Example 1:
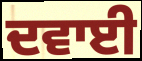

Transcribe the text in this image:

ਦਵਾਈ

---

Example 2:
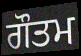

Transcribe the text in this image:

ਗੌਤਮ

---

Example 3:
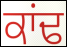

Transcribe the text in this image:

ਕਾਂਢ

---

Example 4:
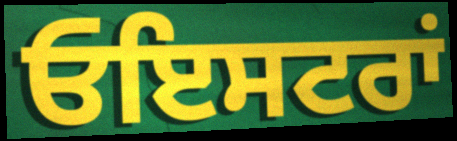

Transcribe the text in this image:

ਓਇਸਟਰਾਂ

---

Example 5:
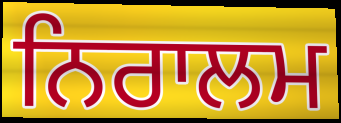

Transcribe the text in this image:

ਨਿਰਾਲਮ